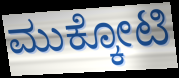
ಮುಕ್ಕೋಟಿ